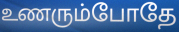
உணரும்போதே